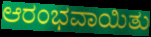
ಆರಂಭವಾಯಿತು